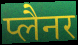
प्लैनर